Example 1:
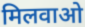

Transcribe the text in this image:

मिलवाओ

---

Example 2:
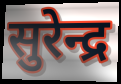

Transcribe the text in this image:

सुरेन्द्र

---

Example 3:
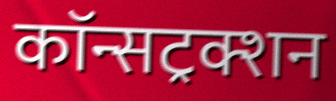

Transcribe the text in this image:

कॉन्सट्रक्शन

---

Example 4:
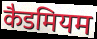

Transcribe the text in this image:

कैडमियम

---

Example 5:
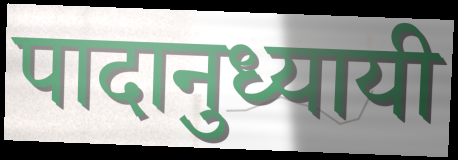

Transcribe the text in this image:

पादानुध्यायी